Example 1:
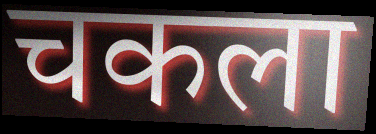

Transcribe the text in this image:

चकला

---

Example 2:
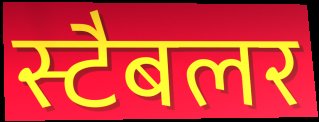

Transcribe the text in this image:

स्टैबलर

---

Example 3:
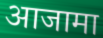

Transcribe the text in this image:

आजामा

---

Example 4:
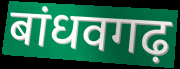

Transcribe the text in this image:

बांधवगढ़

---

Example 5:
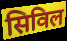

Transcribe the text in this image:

सिविल